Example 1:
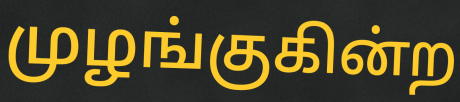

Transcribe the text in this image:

முழங்குகின்ற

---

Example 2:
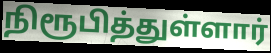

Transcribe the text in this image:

நிரூபித்துள்ளார்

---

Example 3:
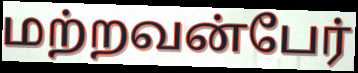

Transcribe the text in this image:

மற்றவன்பேர்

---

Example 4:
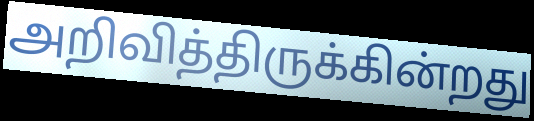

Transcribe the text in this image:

அறிவித்திருக்கின்றது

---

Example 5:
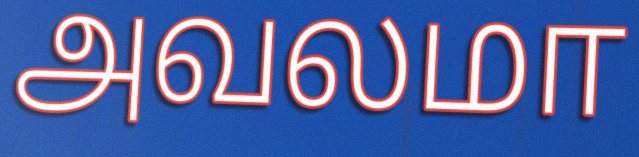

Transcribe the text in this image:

அவலமா